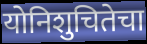
योनिशुचितेचा